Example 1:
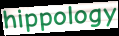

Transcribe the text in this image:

hippology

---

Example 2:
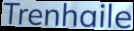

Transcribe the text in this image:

Trenhaile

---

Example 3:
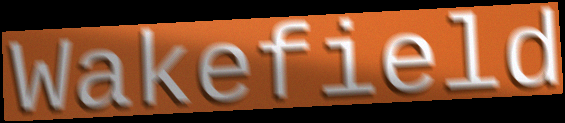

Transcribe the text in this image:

Wakefield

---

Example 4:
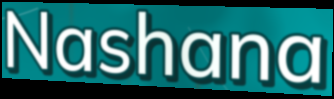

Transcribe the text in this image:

Nashana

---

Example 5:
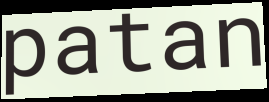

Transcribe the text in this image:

patan